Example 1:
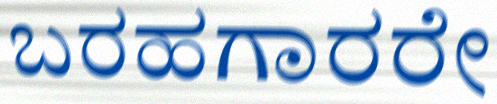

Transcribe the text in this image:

ಬರಹಗಾರರೇ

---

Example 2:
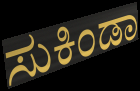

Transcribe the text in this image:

ಸುಕಿಂಡಾ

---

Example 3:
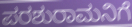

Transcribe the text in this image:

ಪರಶುರಾಮನಿಗೆ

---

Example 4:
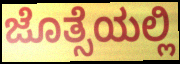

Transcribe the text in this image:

ಜೊತ್ಸೆಯಲ್ಲಿ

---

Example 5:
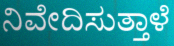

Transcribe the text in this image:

ನಿವೇದಿಸುತ್ತಾಳೆ